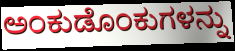
ಅಂಕುಡೊಂಕುಗಳನ್ನು